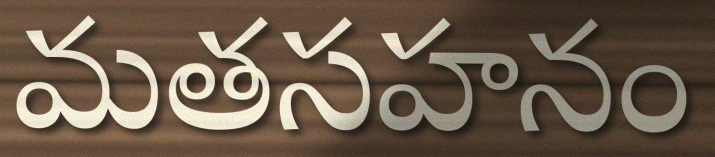
మతసహనం